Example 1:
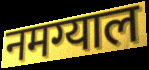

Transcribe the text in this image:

नमग्याल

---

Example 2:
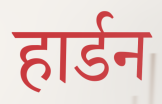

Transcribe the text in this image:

हार्डन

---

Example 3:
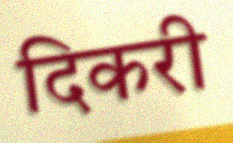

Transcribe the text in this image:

दिकरी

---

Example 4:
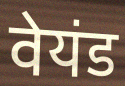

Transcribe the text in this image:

वेयंड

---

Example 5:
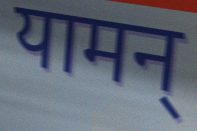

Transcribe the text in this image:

यामन्